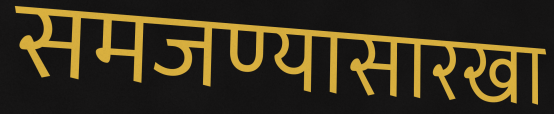
समजण्यासारखा